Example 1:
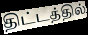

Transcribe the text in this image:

திட்டத்தில்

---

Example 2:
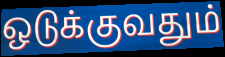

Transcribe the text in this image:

ஒடுக்குவதும்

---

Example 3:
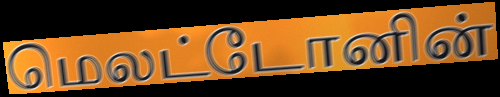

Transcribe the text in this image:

மெலட்டோனின்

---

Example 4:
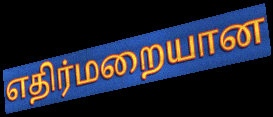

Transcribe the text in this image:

எதிர்மறையான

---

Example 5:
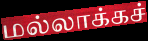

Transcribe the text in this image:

மல்லாக்கச்